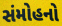
સંમોહનો